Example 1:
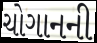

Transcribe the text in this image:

ચોગાનની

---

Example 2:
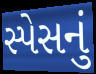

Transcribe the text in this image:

સ્પેસનું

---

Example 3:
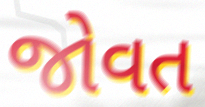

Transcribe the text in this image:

જોવત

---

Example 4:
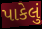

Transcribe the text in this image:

પાકેલું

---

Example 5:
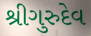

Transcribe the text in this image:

શ્રીગુરુદેવ